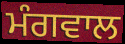
ਮੰਗਵਾਲ